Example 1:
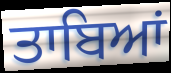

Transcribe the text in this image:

ਤਾਬਿਆਂ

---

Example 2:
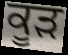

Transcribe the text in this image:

ਕੂੜ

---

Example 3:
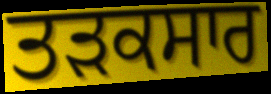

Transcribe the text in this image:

ਤੜਕਸਾਰ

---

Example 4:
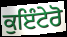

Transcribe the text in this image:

ਕੁਇੰਟੇਰੋ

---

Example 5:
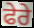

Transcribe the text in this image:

ਫੇਰੇ